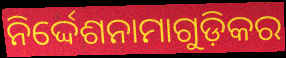
ନିର୍ଦ୍ଦେଶନାମାଗୁଡ଼ିକର